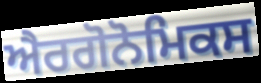
ਐਰਗੋਨੋਮਿਕਸ